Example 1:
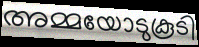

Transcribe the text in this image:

അമ്മയോടുകൂടി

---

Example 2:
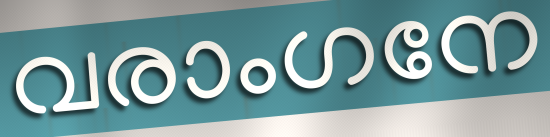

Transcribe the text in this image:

വരാംഗനേ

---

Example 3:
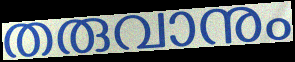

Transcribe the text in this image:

തരുവാനും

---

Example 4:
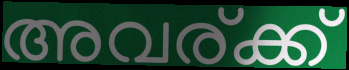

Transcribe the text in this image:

അവര്ക്ക്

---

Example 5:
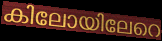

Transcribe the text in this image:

കിലോയിലേറെ